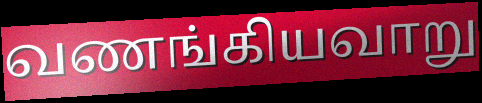
வணங்கியவாறு